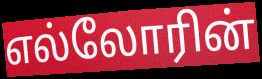
எல்லோரின்